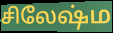
சிலேஷ்ம